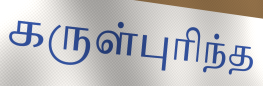
கருள்புரிந்த